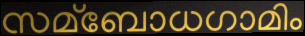
സമ്ബോധഗാമിം